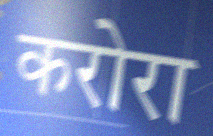
करोरा